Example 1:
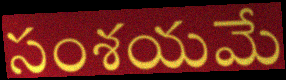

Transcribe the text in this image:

సంశయమే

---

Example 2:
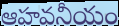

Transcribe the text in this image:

ఆహవనీయం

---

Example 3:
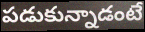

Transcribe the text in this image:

పడుకున్నాడంటే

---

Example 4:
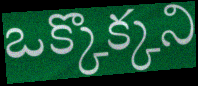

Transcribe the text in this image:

ఒక్కొక్కని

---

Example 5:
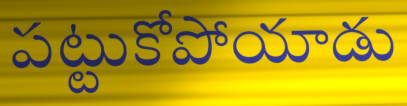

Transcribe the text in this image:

పట్టుకోపోయాడు